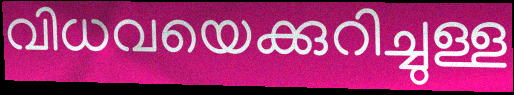
വിധവയെക്കുറിച്ചുള്ള